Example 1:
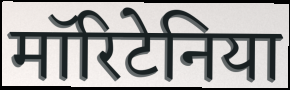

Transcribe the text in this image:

मॉरिटेनिया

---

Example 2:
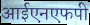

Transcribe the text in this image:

आईएनएफपी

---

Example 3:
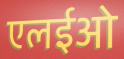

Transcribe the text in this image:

एलईओ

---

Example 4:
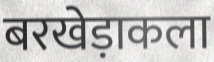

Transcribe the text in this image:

बरखेड़ाकला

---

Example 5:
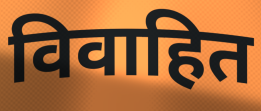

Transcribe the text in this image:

विवाहित